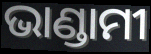
ଭାଣ୍ଡାମୀ